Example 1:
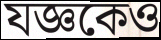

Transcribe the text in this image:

যজ্ঞকেও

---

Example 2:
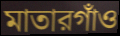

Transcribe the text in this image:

মাতারগাঁও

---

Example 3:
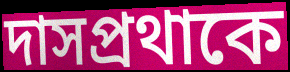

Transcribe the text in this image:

দাসপ্রথাকে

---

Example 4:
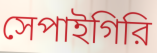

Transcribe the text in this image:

সেপাইগিরি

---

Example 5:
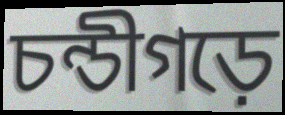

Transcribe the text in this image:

চন্ডীগড়ে